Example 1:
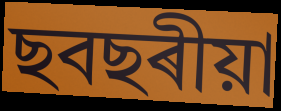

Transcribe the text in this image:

ছবছৰীয়া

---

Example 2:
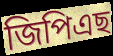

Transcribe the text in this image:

জিপিএছ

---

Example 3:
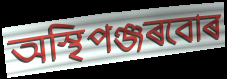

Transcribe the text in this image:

অস্থিপঞ্জৰবোৰ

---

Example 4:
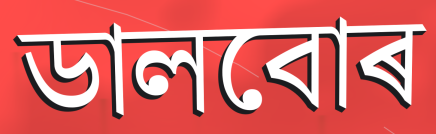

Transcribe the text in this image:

ডালবোৰ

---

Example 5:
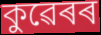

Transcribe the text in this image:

কুৱেৰৰ